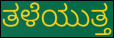
ತಳೆಯುತ್ತ